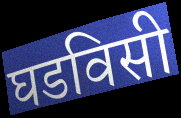
घडविसी